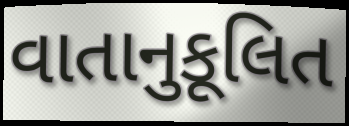
વાતાનુકૂલિત